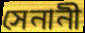
সেনানী